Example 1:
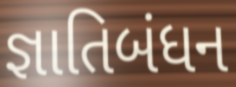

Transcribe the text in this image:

જ્ઞાતિબંધન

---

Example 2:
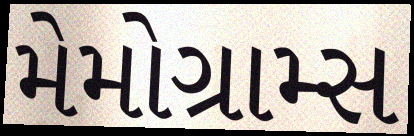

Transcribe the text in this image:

મેમોગ્રામ્સ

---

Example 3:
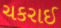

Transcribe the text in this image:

ચકરાઈ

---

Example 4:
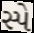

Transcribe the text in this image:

સ્પે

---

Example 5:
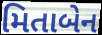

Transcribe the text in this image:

મિતાબેન